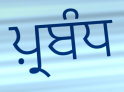
ਪ਼੍ਰਬੰਧ